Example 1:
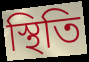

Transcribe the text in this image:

স্থিতি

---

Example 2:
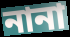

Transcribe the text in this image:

নানা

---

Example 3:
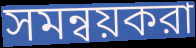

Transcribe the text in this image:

সমন্বয়করা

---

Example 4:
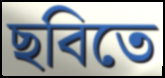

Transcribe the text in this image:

ছবিতে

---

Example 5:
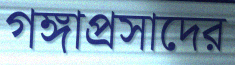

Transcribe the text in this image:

গঙ্গাপ্রসাদের